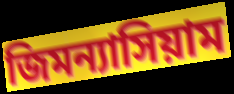
জিমন্যাসিয়াম